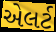
એલર્ટ